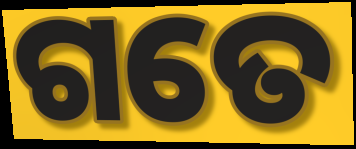
ଗତେ